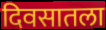
दिवसातला